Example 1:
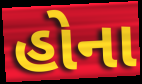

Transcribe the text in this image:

હોના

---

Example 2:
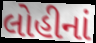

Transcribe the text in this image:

લોહીનાં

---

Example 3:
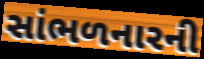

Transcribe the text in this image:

સાંભળનારની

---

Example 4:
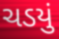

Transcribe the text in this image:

ચડયું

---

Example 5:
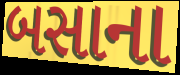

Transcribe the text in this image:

બસાના